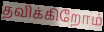
தவிக்கிறோம்